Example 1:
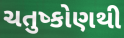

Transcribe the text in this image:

ચતુષ્કોણથી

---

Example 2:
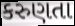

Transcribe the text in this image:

કરુણતા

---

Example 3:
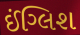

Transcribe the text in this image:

ઈંગ્લિશ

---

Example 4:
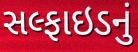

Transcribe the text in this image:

સલ્ફાઇડનું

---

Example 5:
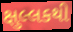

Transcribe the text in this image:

ક્ષુલ્લકથી